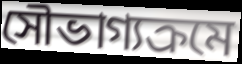
সৌভাগ্যক্রমে